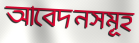
আবেদনসমূহ